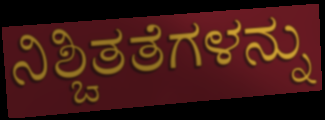
ನಿಶ್ಚಿತತೆಗಳನ್ನು